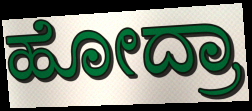
ಹೋದ್ರಾ